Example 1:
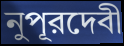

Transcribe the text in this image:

নুপূরদেবী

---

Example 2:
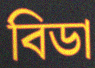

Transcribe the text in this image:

বিডা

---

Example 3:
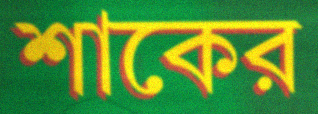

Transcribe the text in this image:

শাকের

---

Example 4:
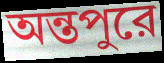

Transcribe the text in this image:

অন্তপুরে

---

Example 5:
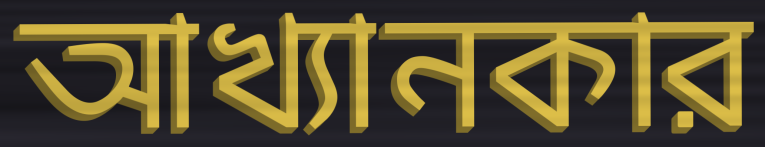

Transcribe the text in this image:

আখ্যানকার